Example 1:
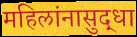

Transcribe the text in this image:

महिलांनासुद्धा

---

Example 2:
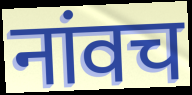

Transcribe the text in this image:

नांवच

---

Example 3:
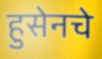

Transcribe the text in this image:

हुसेनचे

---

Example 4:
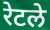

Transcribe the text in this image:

रेटले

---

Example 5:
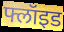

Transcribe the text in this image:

फ्लॉइड